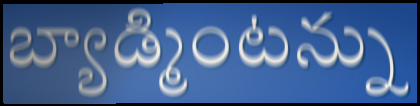
బ్యాడ్మింటన్ను